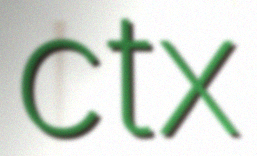
ctx